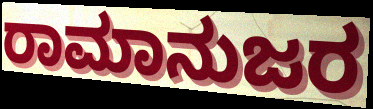
ರಾಮಾನುಜರ